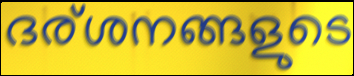
ദര്ശനങ്ങളുടെ